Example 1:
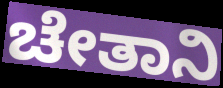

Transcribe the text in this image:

ಚೇತಾನಿ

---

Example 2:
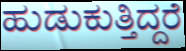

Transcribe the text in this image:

ಹುಡುಕುತ್ತಿದ್ದರೆ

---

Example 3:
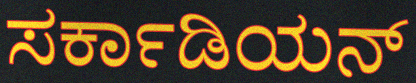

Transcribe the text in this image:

ಸರ್ಕಾಡಿಯನ್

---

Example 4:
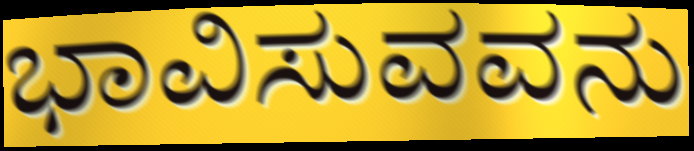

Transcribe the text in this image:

ಭಾವಿಸುವವನು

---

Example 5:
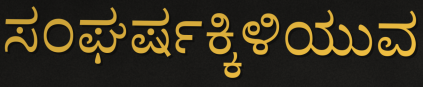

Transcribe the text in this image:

ಸಂಘರ್ಷಕ್ಕಿಳಿಯುವ